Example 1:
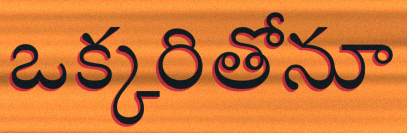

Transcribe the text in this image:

ఒక్కరితోనూ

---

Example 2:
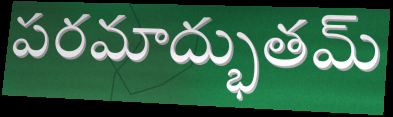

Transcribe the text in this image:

పరమాద్భుతమ్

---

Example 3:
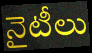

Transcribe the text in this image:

నైటీలు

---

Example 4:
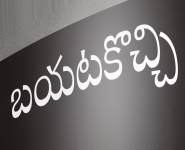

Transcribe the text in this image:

బయటకొచ్చి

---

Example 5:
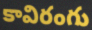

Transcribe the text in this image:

కావిరంగు